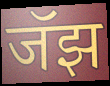
जॅझ